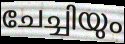
ചേച്ചിയും